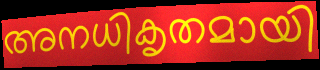
അനധികൃതമായി